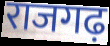
राजगढ़